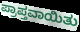
ಪ್ರಾಪ್ತವಾಯಿತು